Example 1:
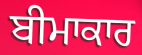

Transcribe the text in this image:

ਬੀਮਾਕਾਰ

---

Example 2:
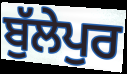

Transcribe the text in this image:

ਬੁੱਲੇਪੁਰ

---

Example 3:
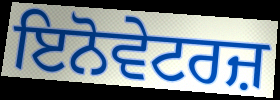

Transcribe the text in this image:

ਇਨੋਵੇਟਰਜ਼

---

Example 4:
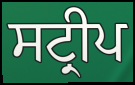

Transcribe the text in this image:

ਸਟ੍ਰੀਪ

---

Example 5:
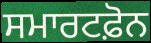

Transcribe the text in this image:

ਸਮਾਰਟਫ਼ੋਨ